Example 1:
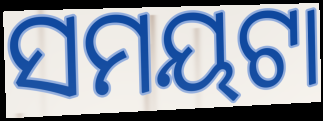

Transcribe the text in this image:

ସମୟଟା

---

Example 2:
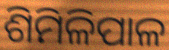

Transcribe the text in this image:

ଶିମିଳିପାଳ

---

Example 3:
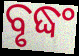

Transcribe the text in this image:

ବୃଦ୍ଧଂ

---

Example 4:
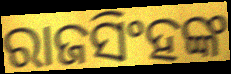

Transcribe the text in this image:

ରାଜସିଂହଙ୍କ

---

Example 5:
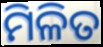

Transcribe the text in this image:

ମିଳିତ